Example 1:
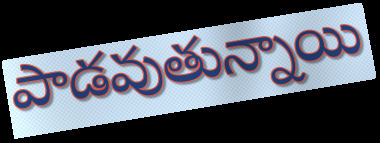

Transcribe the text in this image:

పాడవుతున్నాయి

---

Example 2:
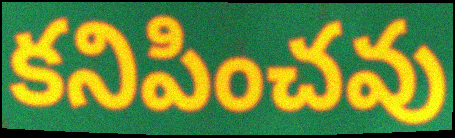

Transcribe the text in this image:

కనిపించవు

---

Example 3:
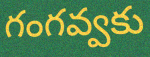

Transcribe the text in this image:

గంగవ్వకు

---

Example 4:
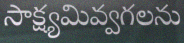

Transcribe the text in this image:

సాక్ష్యమివ్వగలను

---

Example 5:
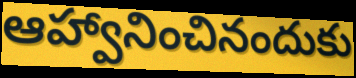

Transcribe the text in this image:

ఆహ్వానించినందుకు